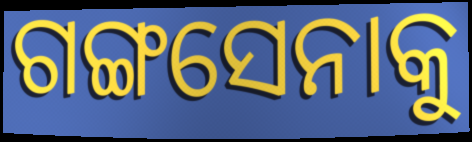
ଗଙ୍ଗସେନାକୁ